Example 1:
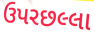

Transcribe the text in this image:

ઉપરછલ્લા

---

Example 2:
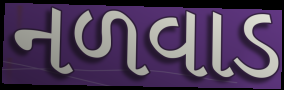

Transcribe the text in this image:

નળવાડ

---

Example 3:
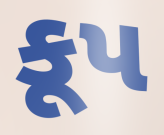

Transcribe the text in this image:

કૂપ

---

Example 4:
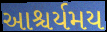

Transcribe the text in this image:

આશ્ચર્યમય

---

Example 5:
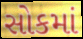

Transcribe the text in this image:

સોકમાં